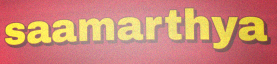
saamarthya